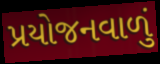
પ્રયોજનવાળું